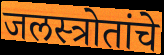
जलस्त्रोतांचे